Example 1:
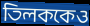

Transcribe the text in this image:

তিলককেও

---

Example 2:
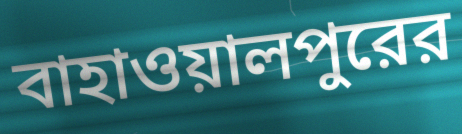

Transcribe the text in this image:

বাহাওয়ালপুরের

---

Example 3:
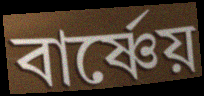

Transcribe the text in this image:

বার্ষ্ণেয়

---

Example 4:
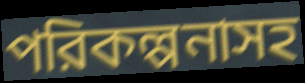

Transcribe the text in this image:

পরিকল্পনাসহ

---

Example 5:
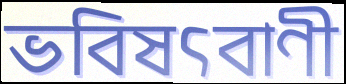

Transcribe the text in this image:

ভবিষৎবাণী